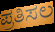
ಪ್ರತಿಸಲ